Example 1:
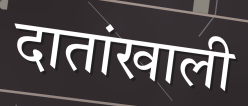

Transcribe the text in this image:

दातांखाली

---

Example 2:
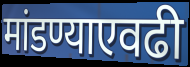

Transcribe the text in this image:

मांडण्याएवढी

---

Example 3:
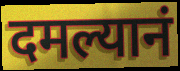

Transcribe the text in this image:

दमल्यानं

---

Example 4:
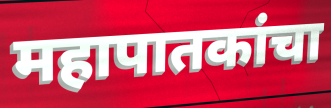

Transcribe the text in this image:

महापातकांचा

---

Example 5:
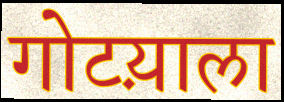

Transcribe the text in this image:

गोटय़ाला